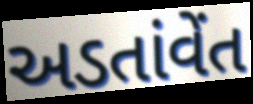
અડતાંવેંત